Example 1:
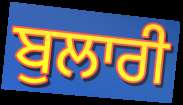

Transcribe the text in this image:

ਬੁਲਾਰੀ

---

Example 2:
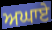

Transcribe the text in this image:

ਅਘਾਏ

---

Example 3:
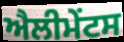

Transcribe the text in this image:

ਐਲੀਮੇੰਟਸ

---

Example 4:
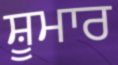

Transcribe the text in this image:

ਸ਼ੂਮਾਰ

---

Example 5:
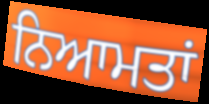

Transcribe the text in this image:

ਨਿਆਮਤਾਂ